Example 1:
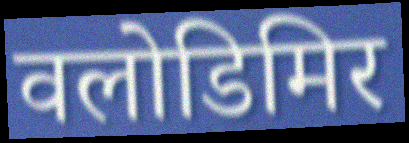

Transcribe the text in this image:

वलोडिमिर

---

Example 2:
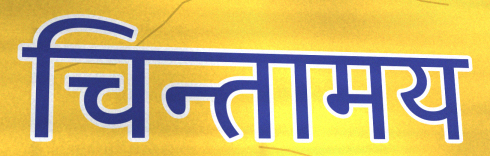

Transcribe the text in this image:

चिन्तामय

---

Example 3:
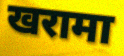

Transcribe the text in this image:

खरामा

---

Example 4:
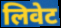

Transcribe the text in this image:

लिवेट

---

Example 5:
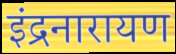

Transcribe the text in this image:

इंद्रनारायण